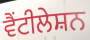
ਵੈਂਟੀਲੇਸ਼ਨ